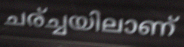
ചര്ച്ചയിലാണ്